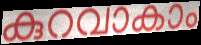
കുറവാകാം